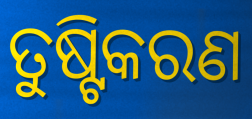
ତୁଷ୍ଟିକରଣ